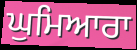
ਘੁਮਿਆਰਾ